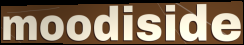
moodiside